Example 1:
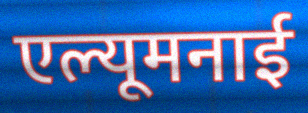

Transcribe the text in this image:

एल्यूमनाई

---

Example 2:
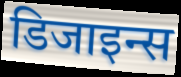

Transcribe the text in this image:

डिजाइन्स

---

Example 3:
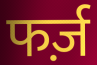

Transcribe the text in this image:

फर्ज़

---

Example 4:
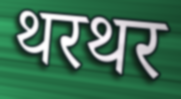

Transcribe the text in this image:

थरथर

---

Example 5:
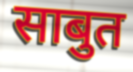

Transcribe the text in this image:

साबुत